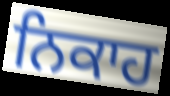
ਨਿਕਾਹ